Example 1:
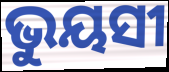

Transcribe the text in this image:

ଭୁୟସୀ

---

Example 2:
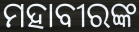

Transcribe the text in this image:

ମହାବୀରଙ୍କ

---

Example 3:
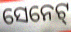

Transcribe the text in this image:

ସେନେଟ୍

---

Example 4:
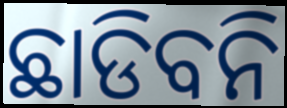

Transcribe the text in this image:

ଛାଡିବନି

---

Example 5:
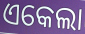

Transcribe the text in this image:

ଏକେଲା